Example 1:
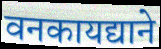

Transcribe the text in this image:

वनकायद्याने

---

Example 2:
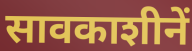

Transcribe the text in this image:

सावकाशीनें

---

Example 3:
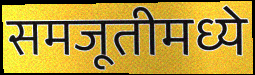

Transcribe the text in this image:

समजूतीमध्ये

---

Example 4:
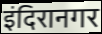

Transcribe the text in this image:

इंदिरानगर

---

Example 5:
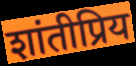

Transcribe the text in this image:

शांतीप्रिय